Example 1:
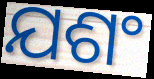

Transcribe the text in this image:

ଯଶଂ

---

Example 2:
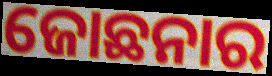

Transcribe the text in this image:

ଜୋଛନାର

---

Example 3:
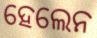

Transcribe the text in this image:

ହେଲେନ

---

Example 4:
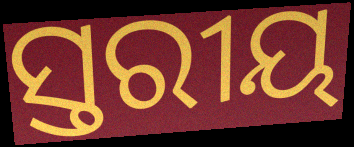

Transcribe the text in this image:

ସ୍ତରୀୟ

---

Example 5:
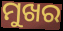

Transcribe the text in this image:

ମୁଖର